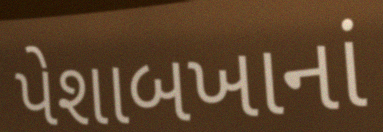
પેશાબખાનાં